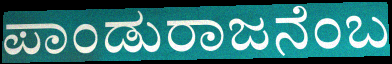
ಪಾಂಡುರಾಜನೆಂಬ